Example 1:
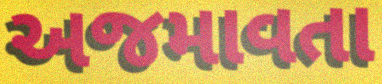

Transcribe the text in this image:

અજમાવતા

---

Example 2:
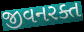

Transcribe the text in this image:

જીવનરક્ત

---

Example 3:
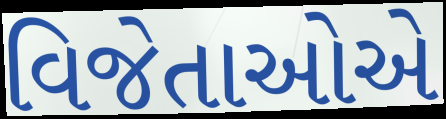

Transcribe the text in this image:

વિજેતાઓએ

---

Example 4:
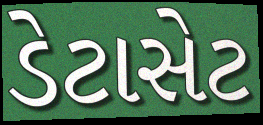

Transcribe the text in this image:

ડેટાસેટ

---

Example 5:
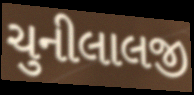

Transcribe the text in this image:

ચુનીલાલજી